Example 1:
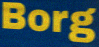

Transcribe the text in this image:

Borg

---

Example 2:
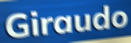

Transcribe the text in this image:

Giraudo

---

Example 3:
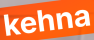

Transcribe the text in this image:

kehna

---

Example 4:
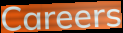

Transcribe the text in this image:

Careers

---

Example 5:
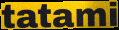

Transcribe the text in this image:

tatami